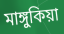
মাঙ্গুকিয়া